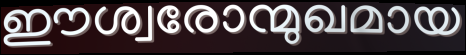
ഈശ്വരോന്മുഖമായ